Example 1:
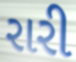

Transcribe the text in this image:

રારી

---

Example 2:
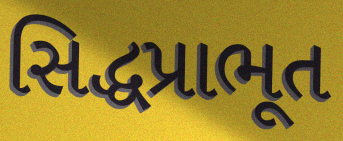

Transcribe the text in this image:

સિદ્ધપ્રાભૂત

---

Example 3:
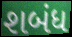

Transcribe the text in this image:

શબંધ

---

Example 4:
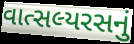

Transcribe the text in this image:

વાત્સલ્યરસનું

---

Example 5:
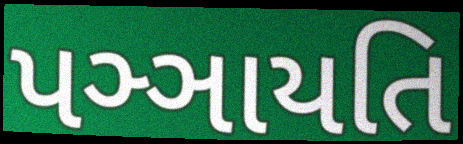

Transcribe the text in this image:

પઞ્ઞાયતિ